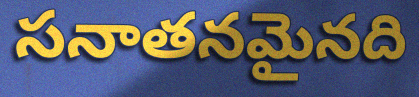
సనాతనమైనది